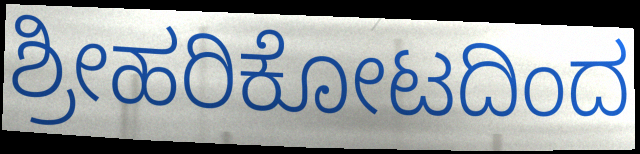
ಶ್ರೀಹರಿಕೋಟದಿಂದ